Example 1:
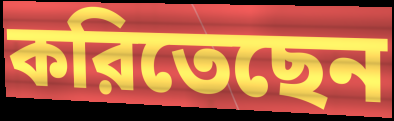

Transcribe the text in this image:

করিতেছেন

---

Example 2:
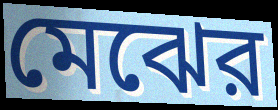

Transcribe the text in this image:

মেঝের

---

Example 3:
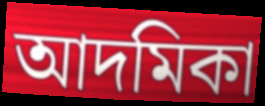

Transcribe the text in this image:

আদমিকা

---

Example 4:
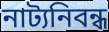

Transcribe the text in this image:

নাট্যনিবন্ধ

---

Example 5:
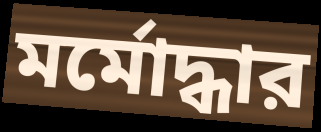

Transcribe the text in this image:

মর্মোদ্ধার